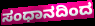
ಸಂಧಾನದಿಂದ